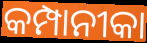
କମ୍ପାନୀକା